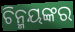
ଚିନ୍ମୟଙ୍କର